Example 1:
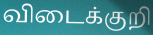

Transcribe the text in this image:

விடைக்குறி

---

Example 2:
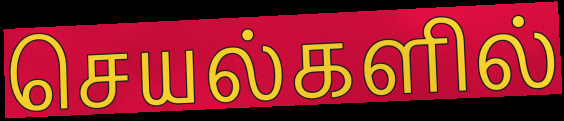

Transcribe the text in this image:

செயல்களில்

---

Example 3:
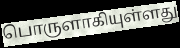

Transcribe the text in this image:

பொருளாகியுள்ளது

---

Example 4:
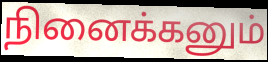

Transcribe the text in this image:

நினைக்கனும்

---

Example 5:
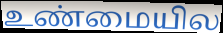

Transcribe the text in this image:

உண்மையில